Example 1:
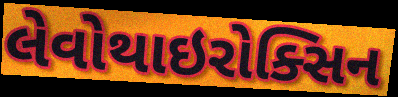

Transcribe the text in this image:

લેવોથાઇરોક્સિન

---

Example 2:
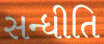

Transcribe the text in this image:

સન્ધીતિ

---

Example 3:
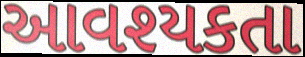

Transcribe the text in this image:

આવશ્યકતા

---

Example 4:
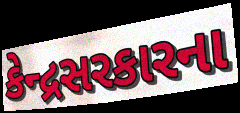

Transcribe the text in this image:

કેન્દ્રસરકારના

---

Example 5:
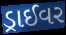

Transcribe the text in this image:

ડ્રાઈવર